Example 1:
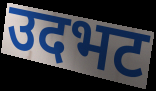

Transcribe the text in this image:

उदभट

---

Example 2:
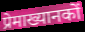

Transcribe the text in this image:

प्रेमाख्यानकों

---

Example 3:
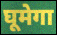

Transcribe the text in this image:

घूमेगा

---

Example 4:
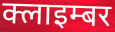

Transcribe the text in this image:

क्लाइम्बर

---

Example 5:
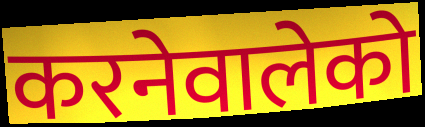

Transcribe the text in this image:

करनेवालेको